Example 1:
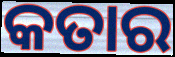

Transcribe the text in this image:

କତାର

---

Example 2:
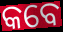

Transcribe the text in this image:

କବେ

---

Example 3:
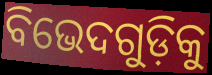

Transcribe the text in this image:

ବିଭେଦଗୁଡ଼ିକୁ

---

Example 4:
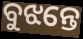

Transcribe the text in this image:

ବୁଝନ୍ତେ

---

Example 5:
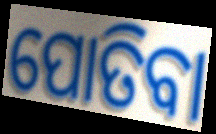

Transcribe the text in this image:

ପୋତିବା